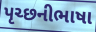
પૃચ્છનીભાષા